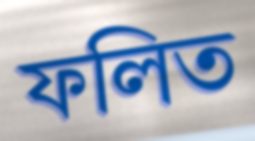
ফলিত